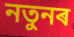
নতুনৰ